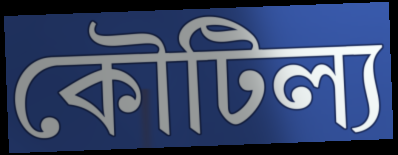
কৌটিল্য